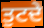
ਤੁਟਦੇ